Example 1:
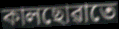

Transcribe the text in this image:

কালছোৱাতে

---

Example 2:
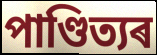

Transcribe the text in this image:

পাণ্ডিত্যৰ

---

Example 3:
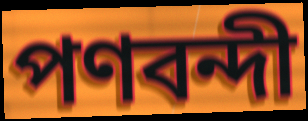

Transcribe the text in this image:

পণবন্দী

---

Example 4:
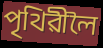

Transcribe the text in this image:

পৃথিৱীলৈ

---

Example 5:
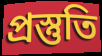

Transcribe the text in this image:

প্ৰস্তুতি